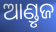
ଆଣ୍ଡୃଜ